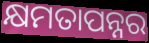
କ୍ଷମତାପନ୍ନର